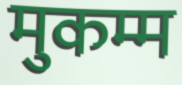
मुकम्म